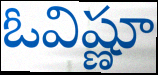
ఓవిష్ణూ